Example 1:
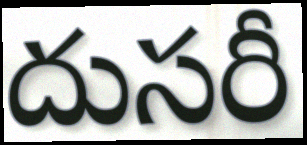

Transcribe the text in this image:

దుసరీ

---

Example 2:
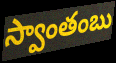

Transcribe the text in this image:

స్వాంతంబు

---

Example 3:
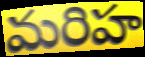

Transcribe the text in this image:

మరిహ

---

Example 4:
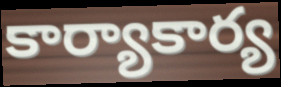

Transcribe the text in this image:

కార్యాకార్య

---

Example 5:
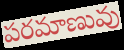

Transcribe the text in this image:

పరమాణువు